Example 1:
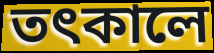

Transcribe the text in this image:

তৎকালে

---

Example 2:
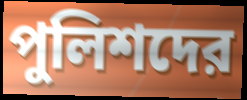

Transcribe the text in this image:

পুলিশদের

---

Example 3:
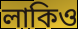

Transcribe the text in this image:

লাকিও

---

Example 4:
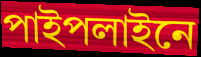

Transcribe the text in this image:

পাইপলাইনে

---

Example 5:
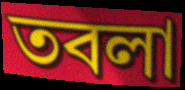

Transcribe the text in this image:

তবলা